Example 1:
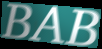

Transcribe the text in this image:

BAB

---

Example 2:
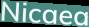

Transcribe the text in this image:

Nicaea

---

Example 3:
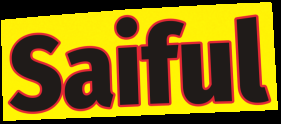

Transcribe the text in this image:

Saiful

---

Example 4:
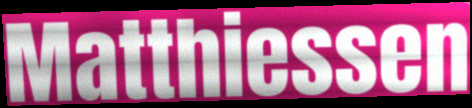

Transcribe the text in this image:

Matthiessen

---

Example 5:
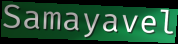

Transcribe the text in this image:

Samayavel